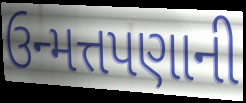
ઉન્મત્તપણાની